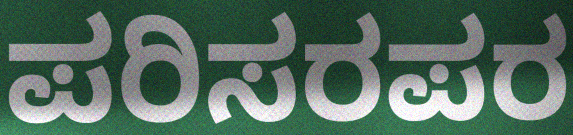
ಪರಿಸರಪರ